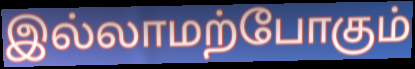
இல்லாமற்போகும்